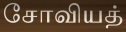
சோவியத்